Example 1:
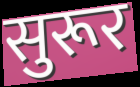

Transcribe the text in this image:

सुरूर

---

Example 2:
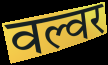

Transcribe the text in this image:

वल्वर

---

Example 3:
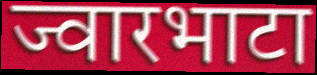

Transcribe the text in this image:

ज्वारभाटा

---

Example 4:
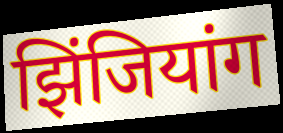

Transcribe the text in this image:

झिंजियांग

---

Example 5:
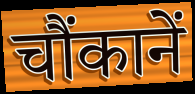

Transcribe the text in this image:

चौंकानें